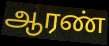
ஆரண்